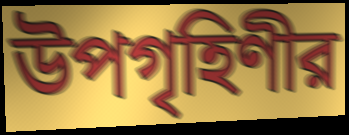
উপগৃহিণীর